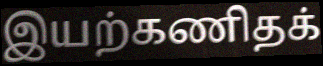
இயற்கணிதக்